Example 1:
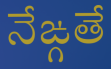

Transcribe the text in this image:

నేఙ్గతే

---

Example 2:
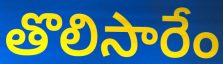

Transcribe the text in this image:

తొలిసారేం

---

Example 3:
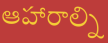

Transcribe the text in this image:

ఆహారాల్ని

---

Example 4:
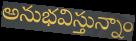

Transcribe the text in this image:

అనుభవిస్తున్నాం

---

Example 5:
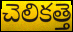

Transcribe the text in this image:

చెలికత్తె